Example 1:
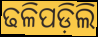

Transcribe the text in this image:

ଢଳିପଡ଼ିଲି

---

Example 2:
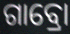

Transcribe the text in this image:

ଗାବ୍ରୋ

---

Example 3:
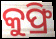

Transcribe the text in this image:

କୁଫ୍ରି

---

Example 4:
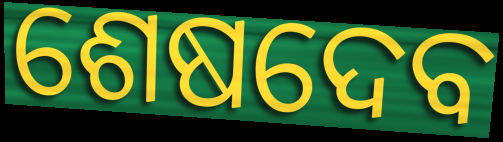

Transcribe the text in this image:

ଶେଷଦେବ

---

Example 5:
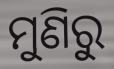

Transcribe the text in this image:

ମୁଣିରୁ